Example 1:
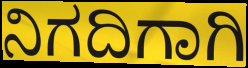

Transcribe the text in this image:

ನಿಗದಿಗಾಗಿ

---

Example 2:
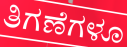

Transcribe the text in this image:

ತಿಗಣೆಗಳೂ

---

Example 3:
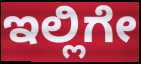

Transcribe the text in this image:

ಇಲ್ಲಿಗೇ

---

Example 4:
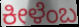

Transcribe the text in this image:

ಕೀಳೆಂಬ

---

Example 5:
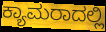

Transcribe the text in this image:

ಕ್ಯಾಮರಾದಲ್ಲಿ